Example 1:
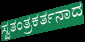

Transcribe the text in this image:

ಸ್ವತಂತ್ರಕರ್ತನಾದ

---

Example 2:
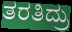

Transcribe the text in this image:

ತರತಿದ್ರು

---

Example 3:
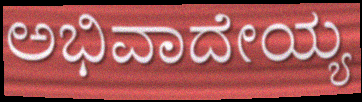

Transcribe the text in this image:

ಅಭಿವಾದೇಯ್ಯ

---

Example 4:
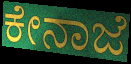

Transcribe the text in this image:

ಕೇನಾಜೆ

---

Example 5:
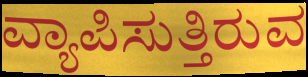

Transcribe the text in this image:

ವ್ಯಾಪಿಸುತ್ತಿರುವ